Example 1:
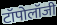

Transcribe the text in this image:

टॉपोलॉजी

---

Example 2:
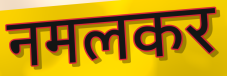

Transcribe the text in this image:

नमलकर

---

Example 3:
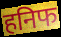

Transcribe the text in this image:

हनिफ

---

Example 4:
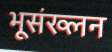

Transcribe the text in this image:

भूसंख्लन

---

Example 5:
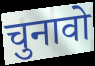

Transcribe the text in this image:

चुनावो